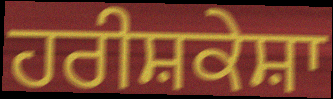
ਹਰੀਸ਼ਕੇਸ਼ਾ